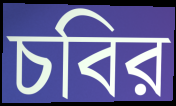
চবির